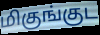
மிகுங்குட